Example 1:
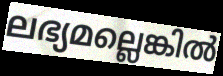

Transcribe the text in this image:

ലഭ്യമല്ലെങ്കിൽ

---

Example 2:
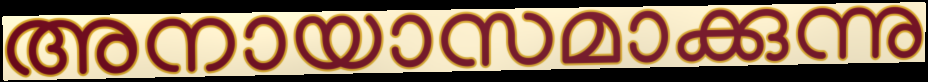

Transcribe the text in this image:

അനായാസമാക്കുന്നു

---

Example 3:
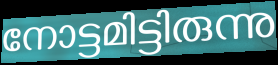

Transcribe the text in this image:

നോട്ടമിട്ടിരുന്നു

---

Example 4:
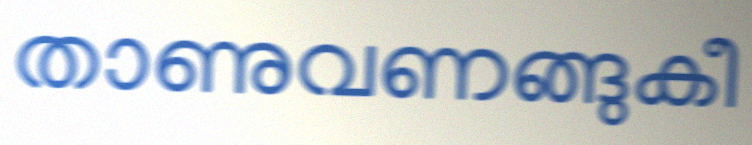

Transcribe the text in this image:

താണുവണങ്ങുകീ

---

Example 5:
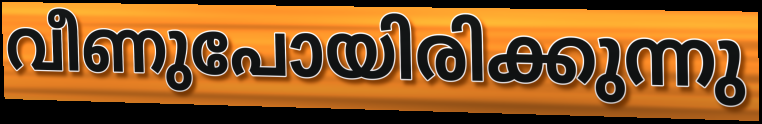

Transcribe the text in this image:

വീണുപോയിരിക്കുന്നു